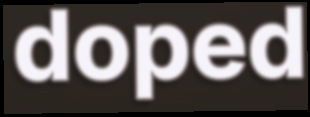
doped